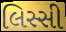
લિસ્સી